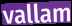
vallam